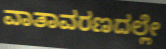
ವಾತಾವರಣದಲ್ಲೇ